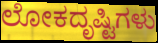
ಲೋಕದೃಷ್ಟಿಗಳು